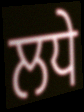
ਲਧੇ